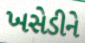
ખસેડીને